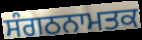
ਸੰਗਠਨਾਮਤਕ